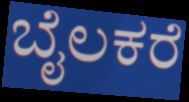
ಬೈಲಕರೆ